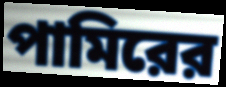
পামিরের